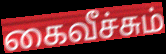
கைவீச்சும்